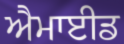
ਐਮਾਈਡ